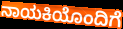
ನಾಯಕಿಯೊಂದಿಗೆ